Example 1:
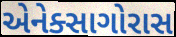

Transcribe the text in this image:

એનેક્સાગોરાસ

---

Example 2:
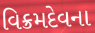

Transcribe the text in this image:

વિક્રમદેવના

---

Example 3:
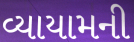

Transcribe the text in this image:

વ્યાયામની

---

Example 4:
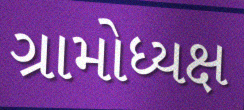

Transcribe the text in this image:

ગ્રામોધ્યક્ષ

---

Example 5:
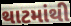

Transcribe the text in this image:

થાટમાંથી